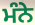
ਮੰਨੇ